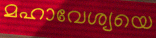
മഹാവേശ്യയെ